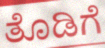
ತೊಡಿಗೆ